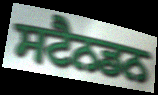
ਸਟੈਨਡਨ